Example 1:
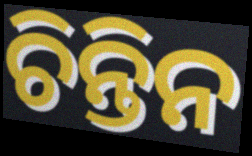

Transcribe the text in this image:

ଚିନ୍ତିନ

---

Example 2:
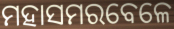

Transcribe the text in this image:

ମହାସମରବେଳେ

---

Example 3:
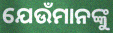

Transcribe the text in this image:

ଯେଉଁମାନଙ୍କୁ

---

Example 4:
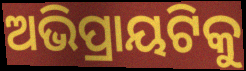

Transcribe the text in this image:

ଅଭିପ୍ରାୟଟିକୁ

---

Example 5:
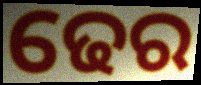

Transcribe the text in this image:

ଢେର